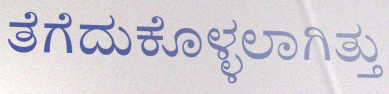
ತೆಗೆದುಕೊಳ್ಳಲಾಗಿತ್ತು